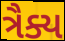
ત્રૈક્ય